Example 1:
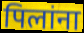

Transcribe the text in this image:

पिलांना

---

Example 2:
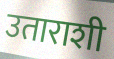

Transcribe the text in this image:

उताराशी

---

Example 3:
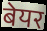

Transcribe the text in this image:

बेयर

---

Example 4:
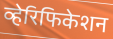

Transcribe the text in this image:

व्हेरिफिकेशन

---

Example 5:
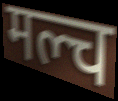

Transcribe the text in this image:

मल्च